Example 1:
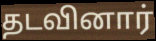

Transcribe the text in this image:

தடவினார்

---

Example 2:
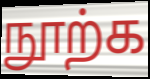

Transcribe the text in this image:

நூற்க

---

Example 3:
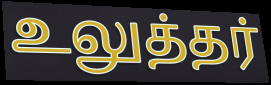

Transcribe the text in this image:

உலுத்தர்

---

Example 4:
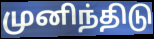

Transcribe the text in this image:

முனிந்திடு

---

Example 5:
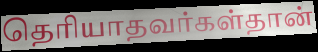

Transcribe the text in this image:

தெரியாதவர்கள்தான்